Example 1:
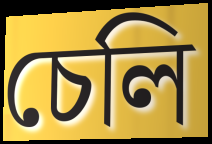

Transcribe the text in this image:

চেলি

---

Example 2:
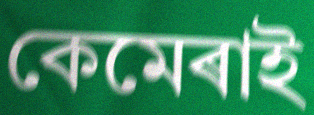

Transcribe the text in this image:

কেমেৰাই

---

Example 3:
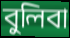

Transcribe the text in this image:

বুলিবা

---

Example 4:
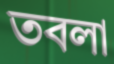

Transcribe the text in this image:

তবলা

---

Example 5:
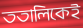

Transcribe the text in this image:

ততালিকেই